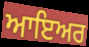
ਆਇਅਰ